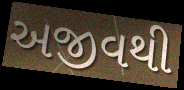
અજીવથી